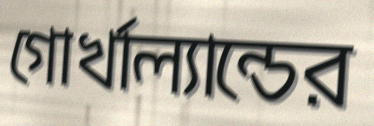
গোর্খাল্যান্ডের